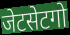
जेटसेटगो